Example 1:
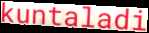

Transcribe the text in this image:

kuntaladi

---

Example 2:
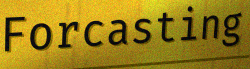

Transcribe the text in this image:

Forcasting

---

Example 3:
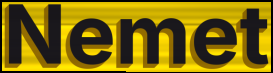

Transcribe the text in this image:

Nemet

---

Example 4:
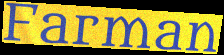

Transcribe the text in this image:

Farman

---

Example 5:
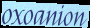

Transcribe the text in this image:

oxoanion